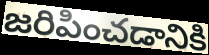
జరిపించడానికి